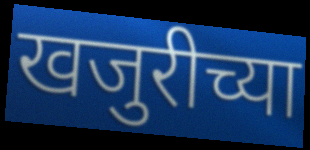
खजुरीच्या